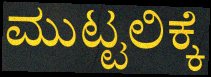
ಮುಟ್ಟಲಿಕ್ಕೆ